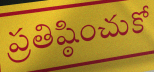
ప్రతిష్ఠించుకో